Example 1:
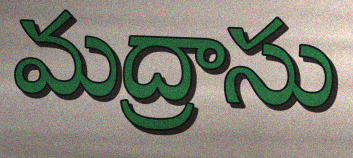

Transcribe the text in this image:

మద్రాసు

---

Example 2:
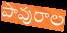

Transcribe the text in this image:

పావురాల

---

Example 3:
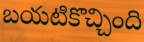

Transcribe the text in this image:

బయటికొచ్చింది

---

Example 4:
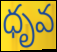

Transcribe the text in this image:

ధృవ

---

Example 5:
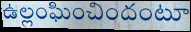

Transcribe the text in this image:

ఉల్లంఘించిందంటూ